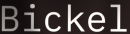
Bickel